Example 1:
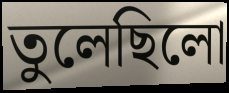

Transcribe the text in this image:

তুলেছিলো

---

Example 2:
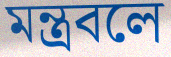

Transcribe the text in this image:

মন্ত্রবলে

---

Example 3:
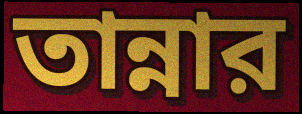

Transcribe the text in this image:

তান্নার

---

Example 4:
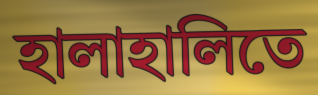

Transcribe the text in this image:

হালাহালিতে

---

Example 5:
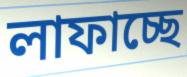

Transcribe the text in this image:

লাফাচ্ছে